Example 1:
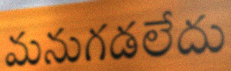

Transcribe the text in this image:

మనుగడలేదు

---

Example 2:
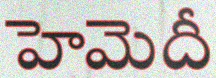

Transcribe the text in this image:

హెమెదీ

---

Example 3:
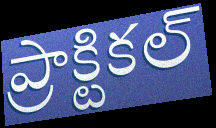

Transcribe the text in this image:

ప్రాక్టికల్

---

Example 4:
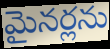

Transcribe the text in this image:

మైనర్లను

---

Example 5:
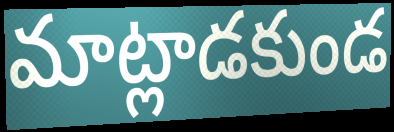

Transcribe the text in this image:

మాట్లాడకుండ